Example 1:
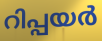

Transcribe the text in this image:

റിപ്പയർ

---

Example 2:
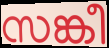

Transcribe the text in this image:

സങ്കീ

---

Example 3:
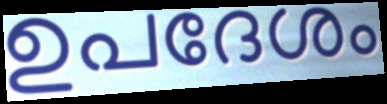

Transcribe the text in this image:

ഉപദേശം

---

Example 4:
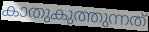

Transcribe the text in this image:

കാതുകുത്തുന്നത്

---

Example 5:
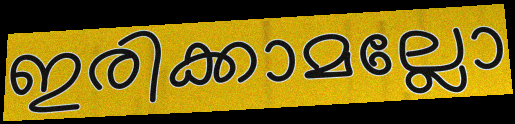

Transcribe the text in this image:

ഇരിക്കാമല്ലോ